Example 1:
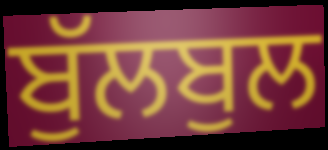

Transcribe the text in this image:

ਬੁੱਲਬੁਲ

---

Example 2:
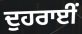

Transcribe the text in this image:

ਦੁਹਰਾਈਂ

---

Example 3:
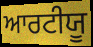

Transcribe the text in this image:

ਆਰਟੀਯੂ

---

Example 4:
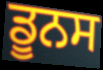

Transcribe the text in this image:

ਡੂਨਸ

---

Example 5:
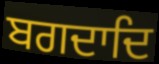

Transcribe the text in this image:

ਬਗਦਾਦਿ